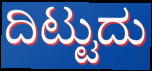
ದಿಟ್ಟುದು